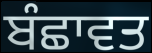
ਬੰਛਾਵਤ